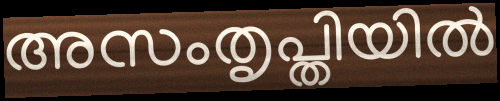
അസംതൃപ്തിയിൽ